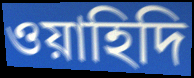
ওয়াহিদি